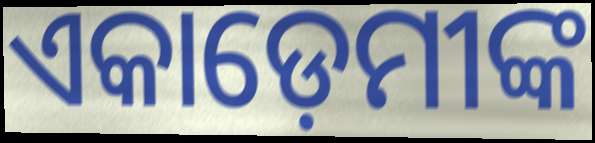
ଏକାଡ଼େମୀଙ୍କ